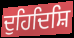
ਦੁਹਿਦਿਸ਼ਿ